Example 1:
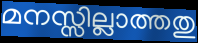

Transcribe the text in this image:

മനസ്സില്ലാത്തതു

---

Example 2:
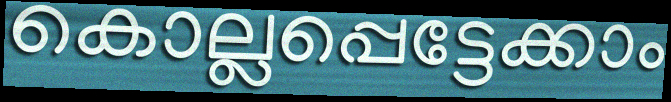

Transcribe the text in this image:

കൊല്ലപ്പെട്ടേക്കാം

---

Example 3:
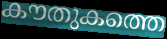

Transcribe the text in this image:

കൗതുകത്തെ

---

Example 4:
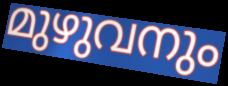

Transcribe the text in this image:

മുഴുവനും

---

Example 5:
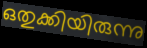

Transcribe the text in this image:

ഒതുക്കിയിരുന്നു